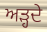
ਅੜ੍ਹਦੇ